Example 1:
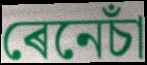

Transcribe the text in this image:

ৰেনেচাঁ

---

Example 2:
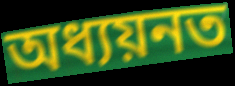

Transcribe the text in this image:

অধ্যয়নত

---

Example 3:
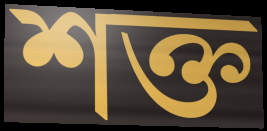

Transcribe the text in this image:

শক্ত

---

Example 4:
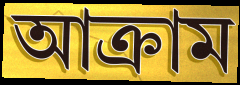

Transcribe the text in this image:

আক্ৰাম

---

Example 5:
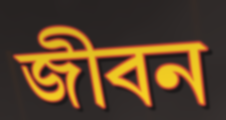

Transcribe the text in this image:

জীবন